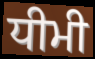
ਧੀਮੀ